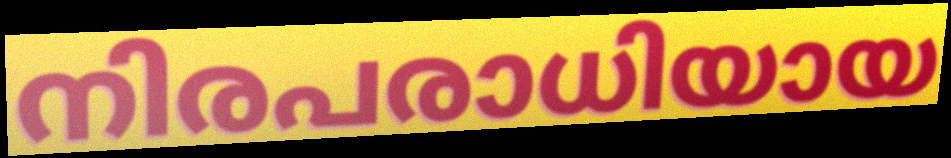
നിരപരാധിയായ